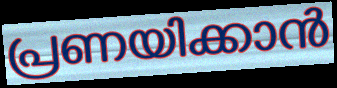
പ്രണയിക്കാൻ